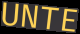
UNTE